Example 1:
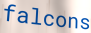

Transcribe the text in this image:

falcons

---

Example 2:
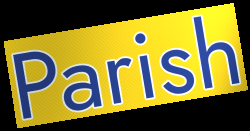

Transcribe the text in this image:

Parish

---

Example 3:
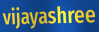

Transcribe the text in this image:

vijayashree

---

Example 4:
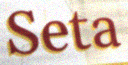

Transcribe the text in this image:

Seta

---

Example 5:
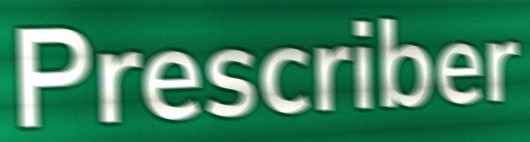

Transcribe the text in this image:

Prescriber